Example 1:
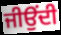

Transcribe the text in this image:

ਜੀਉਂਦੀ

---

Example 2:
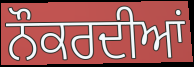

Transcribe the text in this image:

ਨੌਕਰਦੀਆਂ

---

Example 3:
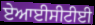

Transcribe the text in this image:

ਏਆਈਸੀਟੀਈ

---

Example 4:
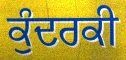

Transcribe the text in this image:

ਕੁੰਦਰਕੀ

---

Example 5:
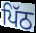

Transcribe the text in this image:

ਪਿੱਠ